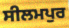
ਸੀਲਮਪੁਰ